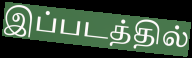
இப்படத்தில்